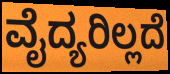
ವೈದ್ಯರಿಲ್ಲದೆ